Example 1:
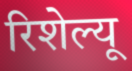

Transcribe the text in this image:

रिशेल्यू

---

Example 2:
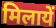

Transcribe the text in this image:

मिलायें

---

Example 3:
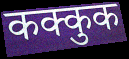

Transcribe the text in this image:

कक्कुक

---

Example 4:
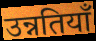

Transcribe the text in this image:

उन्नतियाँ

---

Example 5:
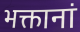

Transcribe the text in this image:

भक्तानां